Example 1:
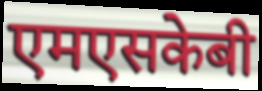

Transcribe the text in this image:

एमएसकेबी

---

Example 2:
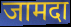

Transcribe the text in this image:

जामदा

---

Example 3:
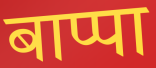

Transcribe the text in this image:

बाप्पा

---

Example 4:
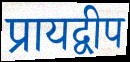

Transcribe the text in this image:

प्रायद्वीप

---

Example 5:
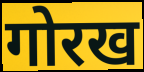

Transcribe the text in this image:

गोरख